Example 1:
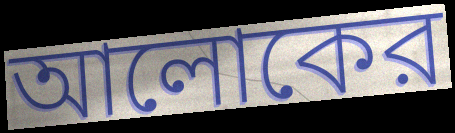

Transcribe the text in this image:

আলোকের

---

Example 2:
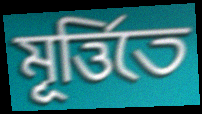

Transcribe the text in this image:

মূর্ত্তিতে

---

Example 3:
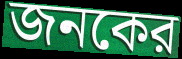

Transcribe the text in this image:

জনকের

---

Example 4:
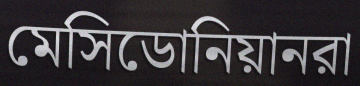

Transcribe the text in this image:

মেসিডোনিয়ানরা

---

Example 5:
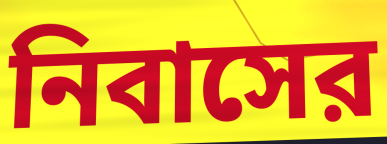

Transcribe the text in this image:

নিবাসের